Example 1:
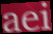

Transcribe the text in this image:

aei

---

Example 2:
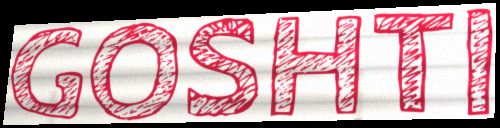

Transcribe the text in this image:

GOSHTI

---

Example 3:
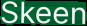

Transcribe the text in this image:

Skeen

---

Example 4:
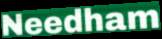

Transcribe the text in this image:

Needham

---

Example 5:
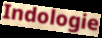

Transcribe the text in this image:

Indologie